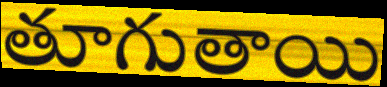
తూగుతాయి